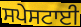
ਸਪੇਸਟਾਈ